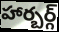
హార్బర్గ్